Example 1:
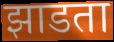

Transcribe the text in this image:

झाडता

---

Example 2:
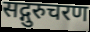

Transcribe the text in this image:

सद्गुरुचरण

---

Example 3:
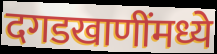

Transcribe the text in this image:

दगडखाणींमध्ये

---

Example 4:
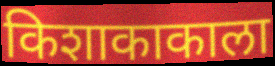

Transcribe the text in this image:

किशाकाकाला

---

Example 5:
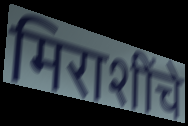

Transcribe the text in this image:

मिराशींचे